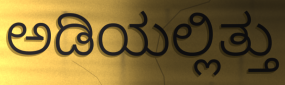
ಅಡಿಯಲ್ಲಿತ್ತು